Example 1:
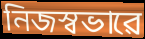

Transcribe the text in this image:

নিজস্বভাৱে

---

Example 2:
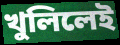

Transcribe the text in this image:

খুলিলেই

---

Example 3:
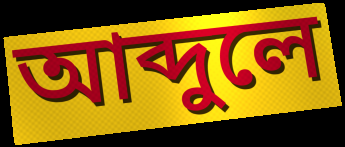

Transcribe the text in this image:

আব্দুলে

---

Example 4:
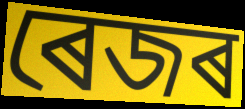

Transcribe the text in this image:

ৰেজৰ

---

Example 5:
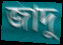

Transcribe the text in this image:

জাদু